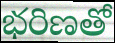
భరిణతో